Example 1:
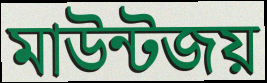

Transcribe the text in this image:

মাউন্টজয়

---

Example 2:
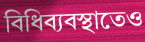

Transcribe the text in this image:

বিধিব্যবস্থাতেও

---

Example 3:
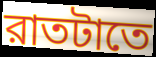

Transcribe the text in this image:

রাতটাতে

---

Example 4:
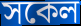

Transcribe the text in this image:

সকেল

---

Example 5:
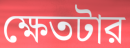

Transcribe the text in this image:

ক্ষেতটার